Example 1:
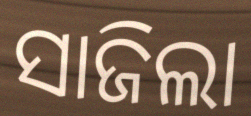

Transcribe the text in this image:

ସାଜିଲା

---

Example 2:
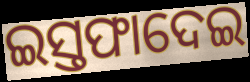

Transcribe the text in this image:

ଇସ୍ତଫାଦେଇ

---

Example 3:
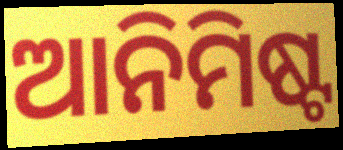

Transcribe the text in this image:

ଆନିମିଷ୍ଟ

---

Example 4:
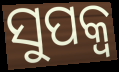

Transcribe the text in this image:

ସୁପକ୍ବ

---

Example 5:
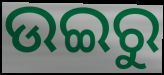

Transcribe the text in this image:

ଉଇରୁ